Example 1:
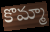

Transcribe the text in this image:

కొమ్మా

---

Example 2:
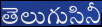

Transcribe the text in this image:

తెలుగుసినీ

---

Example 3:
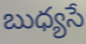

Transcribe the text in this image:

బుధ్యసే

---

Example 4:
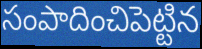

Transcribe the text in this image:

సంపాదించిపెట్టిన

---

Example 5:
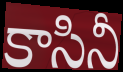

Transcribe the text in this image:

కాసినీ